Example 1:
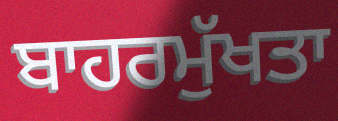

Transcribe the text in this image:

ਬਾਹਰਮੁੱਖਤਾ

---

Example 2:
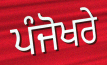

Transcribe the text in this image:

ਪੰਜੋਖਰੇ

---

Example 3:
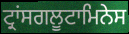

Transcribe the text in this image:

ਟ੍ਰਾਂਸਗਲੂਟਾਮਿਨੇਸ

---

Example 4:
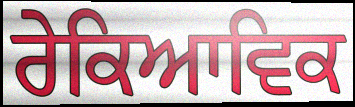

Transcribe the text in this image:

ਰੇਕਿਆਵਿਕ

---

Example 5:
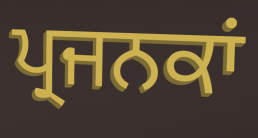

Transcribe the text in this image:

ਪ੍ਰਜਨਕਾਂ